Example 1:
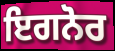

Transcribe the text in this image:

ਇਗਨੋਰ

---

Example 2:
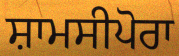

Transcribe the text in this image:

ਸ਼ਾਮਸੀਪੋਰਾ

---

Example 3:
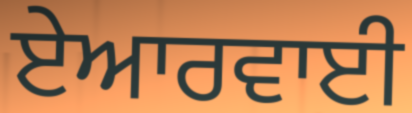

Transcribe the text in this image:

ਏਆਰਵਾਈ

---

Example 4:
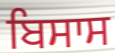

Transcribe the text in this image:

ਬਿਸਾਸ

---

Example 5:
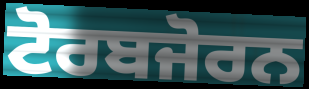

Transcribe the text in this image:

ਟੋਰਬਜੋਰਨ